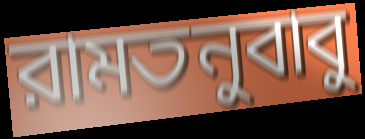
রামতনুবাবু